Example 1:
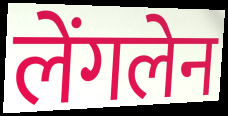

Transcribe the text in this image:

लेंगलेन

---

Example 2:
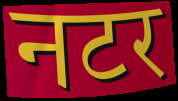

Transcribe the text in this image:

नटर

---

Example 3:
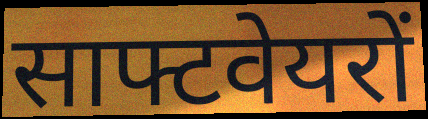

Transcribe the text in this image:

साफ्टवेयरों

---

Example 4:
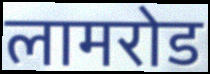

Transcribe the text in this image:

लामरोड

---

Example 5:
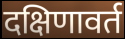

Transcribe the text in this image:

दक्षिणावर्त